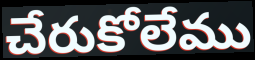
చేరుకోలేము